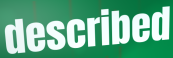
described